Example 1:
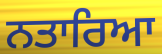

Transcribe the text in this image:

ਨਤਾਰਿਆ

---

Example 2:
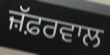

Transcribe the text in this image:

ਜ਼ੱਫ਼ਰਵਾਲ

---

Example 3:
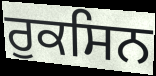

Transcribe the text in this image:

ਰੁਕਸਿਨ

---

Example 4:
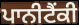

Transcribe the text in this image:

ਪਾਨੀਟੈਂਕੀ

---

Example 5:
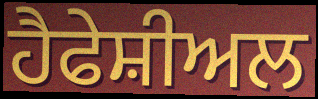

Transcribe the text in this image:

ਹੈਫੇਸ਼ੀਅਲ